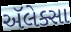
ઍલેક્સા